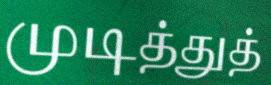
முடித்துத்